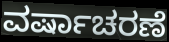
ವರ್ಷಾಚರಣೆ